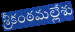
శ్రీకంఠమల్లేశు